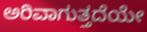
ಅರಿವಾಗುತ್ತದೆಯೇ